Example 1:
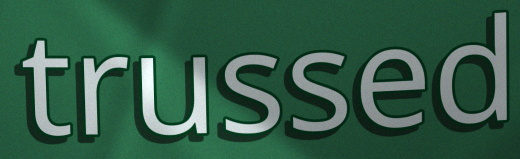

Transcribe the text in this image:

trussed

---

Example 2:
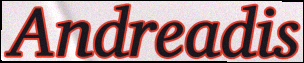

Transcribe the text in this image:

Andreadis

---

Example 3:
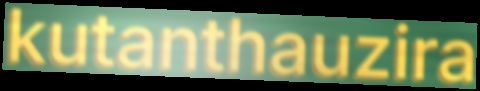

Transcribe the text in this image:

kutanthauzira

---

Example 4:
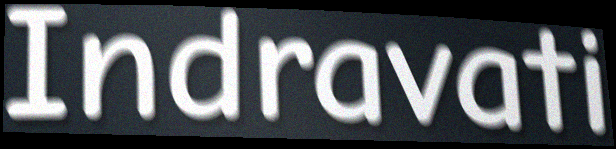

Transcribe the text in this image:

Indravati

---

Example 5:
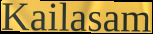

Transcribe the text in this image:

Kailasam